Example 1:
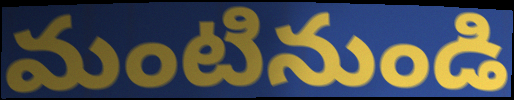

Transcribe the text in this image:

మంటినుండి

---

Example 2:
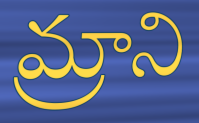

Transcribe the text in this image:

మ్రాని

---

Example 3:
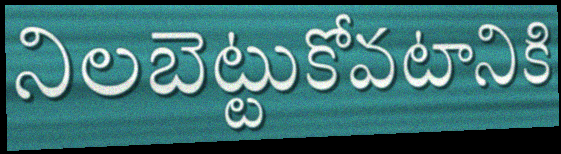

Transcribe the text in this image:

నిలబెట్టుకోవటానికి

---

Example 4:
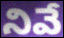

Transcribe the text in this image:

నివే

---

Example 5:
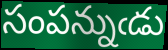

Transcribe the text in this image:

సంపన్నుఁడు